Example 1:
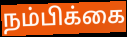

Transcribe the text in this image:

நம்பிக்கை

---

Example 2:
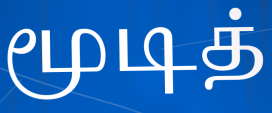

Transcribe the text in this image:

மூடித்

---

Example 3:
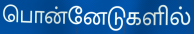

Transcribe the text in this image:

பொன்னேடுகளில்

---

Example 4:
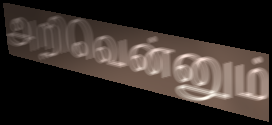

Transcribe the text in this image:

அறிவென்னும்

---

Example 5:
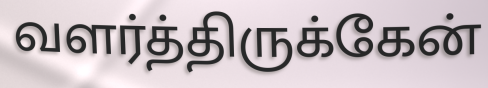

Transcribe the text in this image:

வளர்த்திருக்கேன்